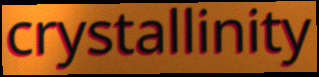
crystallinity